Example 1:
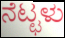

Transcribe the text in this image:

ನೆಟ್ಟಳು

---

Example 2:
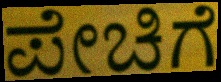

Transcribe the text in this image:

ಪೇಚಿಗೆ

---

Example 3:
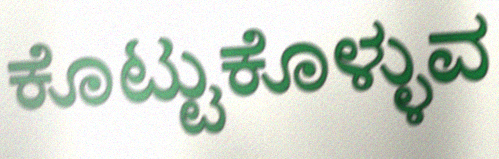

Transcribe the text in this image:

ಕೊಟ್ಟುಕೊಳ್ಳುವ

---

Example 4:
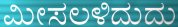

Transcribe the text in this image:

ಮೀಸಲಳಿದುದು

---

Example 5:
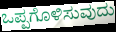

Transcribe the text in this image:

ಒಪ್ಪಗೊಳಿಸುವುದು